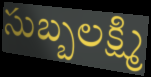
సుబ్బలక్ష్మి